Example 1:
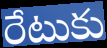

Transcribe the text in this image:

రేటుకు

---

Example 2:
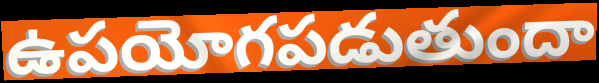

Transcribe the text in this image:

ఉపయోగపడుతుందా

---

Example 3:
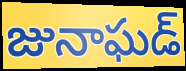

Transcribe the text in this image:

జునాఘడ్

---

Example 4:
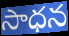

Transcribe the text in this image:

సాధన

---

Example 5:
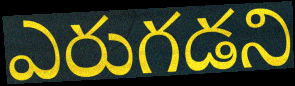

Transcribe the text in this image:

ఎరుగడని